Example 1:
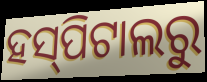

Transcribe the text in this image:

ହସ୍‍ପିଟାଲରୁ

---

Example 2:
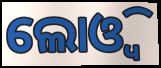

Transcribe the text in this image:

ଲୋଓ୍ବି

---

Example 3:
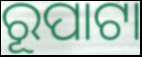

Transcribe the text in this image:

ରୂପାଟା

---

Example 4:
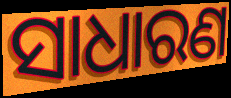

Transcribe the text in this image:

ସାଧାରଣ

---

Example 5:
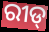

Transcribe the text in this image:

ରୀଡ୍